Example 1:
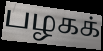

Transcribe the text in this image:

பழகக்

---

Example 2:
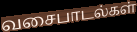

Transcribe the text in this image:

வசைபாடல்கள்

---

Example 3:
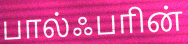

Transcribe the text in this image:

பால்ஃபரின்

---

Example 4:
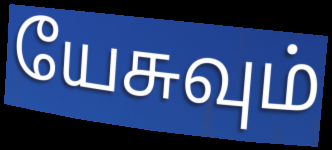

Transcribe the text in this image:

யேசுவும்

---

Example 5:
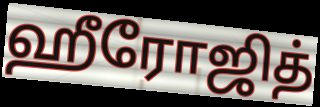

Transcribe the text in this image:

ஹீரோஜித்